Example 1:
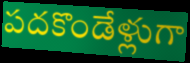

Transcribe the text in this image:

పదకొండేళ్లుగా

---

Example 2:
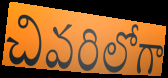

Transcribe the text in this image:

చివరిలోగా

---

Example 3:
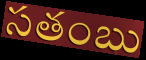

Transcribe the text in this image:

సతంబు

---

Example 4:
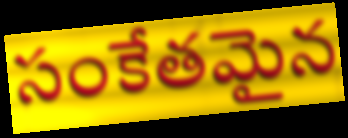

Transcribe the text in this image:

సంకేతమైన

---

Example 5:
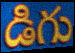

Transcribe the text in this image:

డిగు